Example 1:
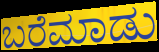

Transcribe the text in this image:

ಬರೆಮಾಡು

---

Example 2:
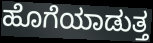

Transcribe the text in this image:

ಹೊಗೆಯಾಡುತ್ತ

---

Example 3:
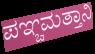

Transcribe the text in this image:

ಪಞ್ಚಮತ್ತಾನಿ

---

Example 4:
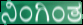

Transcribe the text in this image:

ನಿಂಗಿಂತ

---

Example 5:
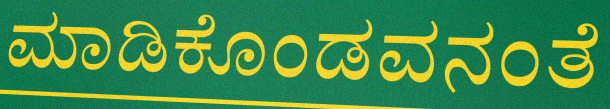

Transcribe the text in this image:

ಮಾಡಿಕೊಂಡವನಂತೆ